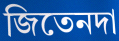
জিতেনদা